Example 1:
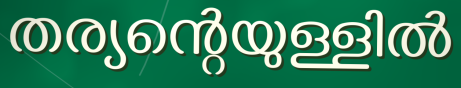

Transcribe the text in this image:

തര്യന്റെയുള്ളിൽ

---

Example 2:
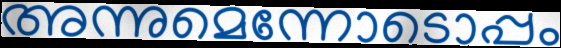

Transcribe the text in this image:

അന്നുമെന്നോടൊപ്പം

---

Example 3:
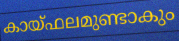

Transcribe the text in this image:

കായ്ഫലമുണ്ടാകും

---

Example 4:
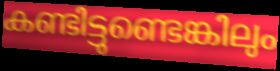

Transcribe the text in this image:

കണ്ടിട്ടുണ്ടെങ്കിലും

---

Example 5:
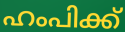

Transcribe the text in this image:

ഹംപിക്ക്